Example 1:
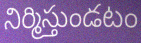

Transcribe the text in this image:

నిర్మిస్తుండటం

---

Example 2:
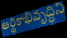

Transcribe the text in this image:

ఆర్థికాభివృద్ధిని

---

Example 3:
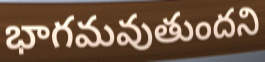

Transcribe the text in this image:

భాగమవుతుందని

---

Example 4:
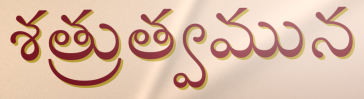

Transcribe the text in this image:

శత్రుత్వమున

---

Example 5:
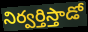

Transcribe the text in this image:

నిర్వర్తిస్తాడో